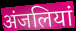
अंजलियां